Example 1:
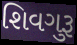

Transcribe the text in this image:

શિવગુરૂ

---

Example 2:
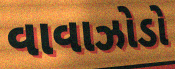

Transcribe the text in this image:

વાવાઝોડો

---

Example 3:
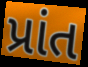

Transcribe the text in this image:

પ્રાંત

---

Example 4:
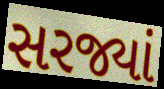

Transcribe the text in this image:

સરજ્યાં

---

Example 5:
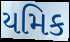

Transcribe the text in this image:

યમિક